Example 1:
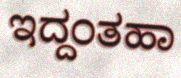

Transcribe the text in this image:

ಇದ್ದಂತಹಾ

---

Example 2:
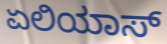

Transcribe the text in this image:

ಏಲಿಯಾಸ್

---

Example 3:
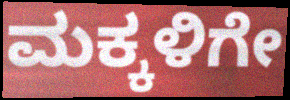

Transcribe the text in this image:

ಮಕ್ಕಳಿಗೇ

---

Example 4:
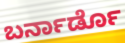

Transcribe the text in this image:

ಬರ್ನಾರ್ಡೊ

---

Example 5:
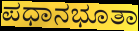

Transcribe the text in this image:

ಪಧಾನಭೂತಾ